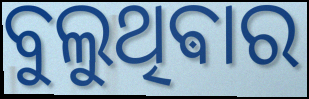
ବୁଲୁଥିଵାର